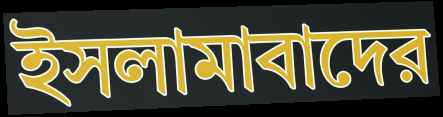
ইসলামাবাদের